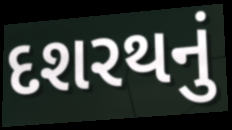
દશરથનું